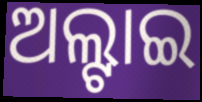
ଅଲ୍ଟାଇ